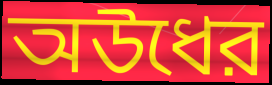
অউধের